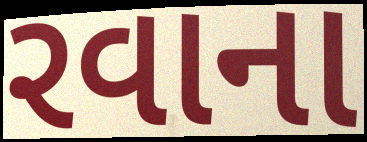
રવાના